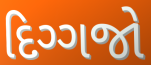
દિગ્ગજો